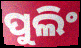
ପୁଲିଂ